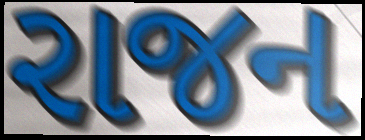
રાજન